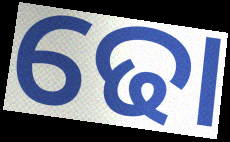
ଢୋ